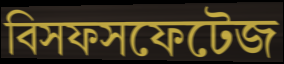
বিসফসফেটেজ